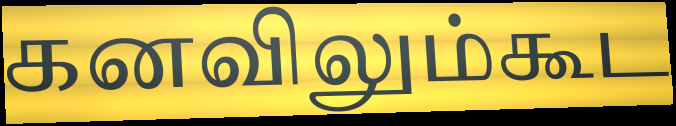
கனவிலும்கூட